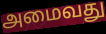
அமைவது